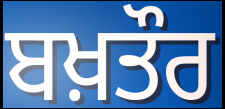
ਬਖ਼ਤੌਰ